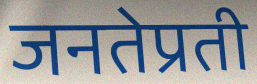
जनतेप्रती